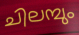
ചിലമ്പും